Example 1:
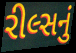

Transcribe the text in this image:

રીલ્સનું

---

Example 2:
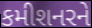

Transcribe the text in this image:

કમીશનરને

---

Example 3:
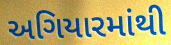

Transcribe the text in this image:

અગિયારમાંથી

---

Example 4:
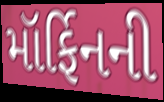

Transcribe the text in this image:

મૉર્ફિનની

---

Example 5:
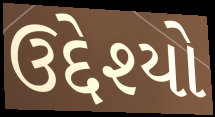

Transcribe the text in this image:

ઉદ્દેશ્યો